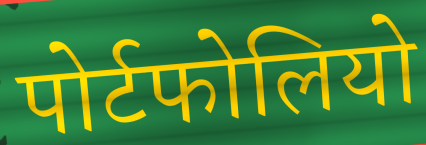
पोर्टफोलियो